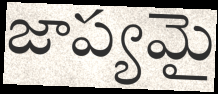
జాప్యమై